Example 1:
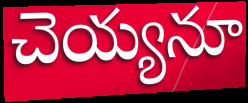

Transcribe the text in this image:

చెయ్యనూ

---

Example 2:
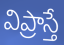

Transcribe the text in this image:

విప్రాస్తే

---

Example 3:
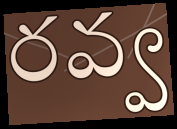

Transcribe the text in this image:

రవ్వ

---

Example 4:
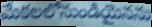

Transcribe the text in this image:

మేకలలోనుండియైనను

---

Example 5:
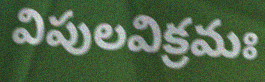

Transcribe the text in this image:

విపులవిక్రమః